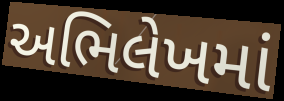
અભિલેખમાં